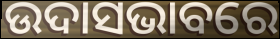
ଉଦାସଭାବରେ